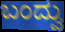
ಬಂದ್ವು